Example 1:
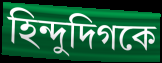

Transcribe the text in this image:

হিন্দুদিগকে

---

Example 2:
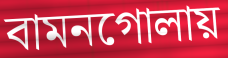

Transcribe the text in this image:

বামনগোলায়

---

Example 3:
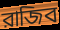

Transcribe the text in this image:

রাজিব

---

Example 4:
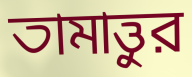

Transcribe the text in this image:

তামাত্তুর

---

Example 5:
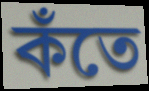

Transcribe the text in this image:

কঁতে